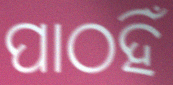
ପାଠହିଁ